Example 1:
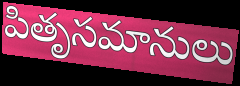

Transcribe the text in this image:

పితృసమానులు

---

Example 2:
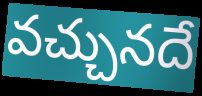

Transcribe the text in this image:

వచ్చునదే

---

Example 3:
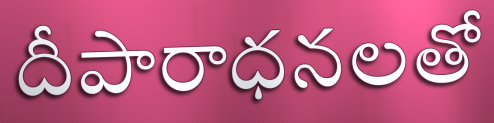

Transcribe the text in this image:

దీపారాధనలతో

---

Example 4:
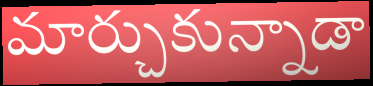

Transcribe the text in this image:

మార్చుకున్నాడా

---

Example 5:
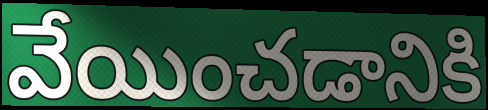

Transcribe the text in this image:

వేయించడానికి